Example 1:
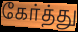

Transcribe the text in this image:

கேர்த்து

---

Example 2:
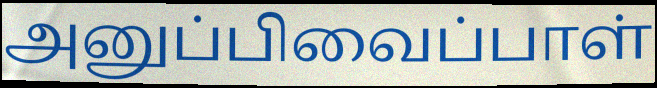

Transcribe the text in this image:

அனுப்பிவைப்பாள்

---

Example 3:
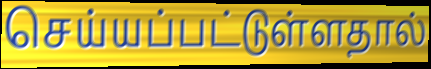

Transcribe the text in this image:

செய்யப்பட்டுள்ளதால்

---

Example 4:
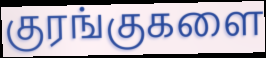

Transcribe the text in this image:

குரங்குகளை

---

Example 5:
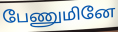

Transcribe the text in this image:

பேணுமினே